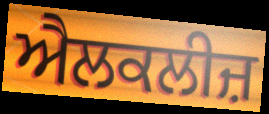
ਐਲਕਲੀਜ਼